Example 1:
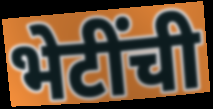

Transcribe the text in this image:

भेटींची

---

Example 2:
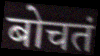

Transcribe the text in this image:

बोचतं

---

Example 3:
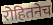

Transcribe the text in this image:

रोहितनेच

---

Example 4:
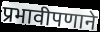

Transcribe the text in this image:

प्रभावीपणाने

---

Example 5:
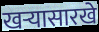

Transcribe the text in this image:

खऱ्यासारखे